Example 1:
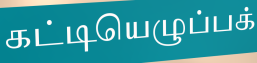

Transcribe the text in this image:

கட்டியெழுப்பக்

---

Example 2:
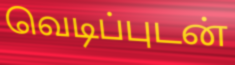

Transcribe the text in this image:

வெடிப்புடன்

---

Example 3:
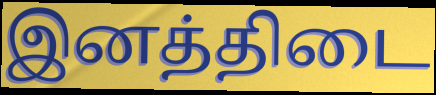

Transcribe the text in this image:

இனத்திடை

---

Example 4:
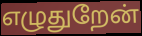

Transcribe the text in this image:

எழுதுறேன்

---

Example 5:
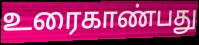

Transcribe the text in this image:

உரைகாண்பது